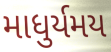
માધુર્યમય